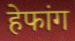
हेफांग